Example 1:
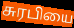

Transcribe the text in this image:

சுரபியை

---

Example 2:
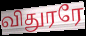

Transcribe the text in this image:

விதுரரே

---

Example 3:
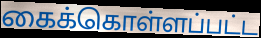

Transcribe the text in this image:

கைக்கொள்ளப்பட்ட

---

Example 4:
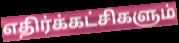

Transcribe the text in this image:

எதிர்க்கட்சிகளும்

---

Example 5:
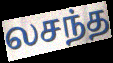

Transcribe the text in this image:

லசந்த